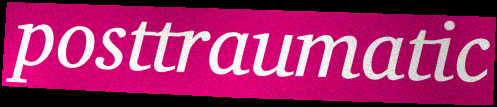
posttraumatic